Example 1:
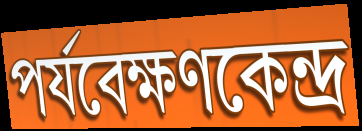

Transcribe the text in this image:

পর্যবেক্ষণকেন্দ্র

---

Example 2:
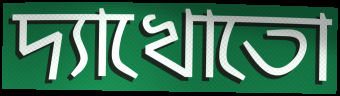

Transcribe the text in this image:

দ্যাখোতো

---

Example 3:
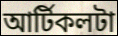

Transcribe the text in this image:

আর্টিকলটা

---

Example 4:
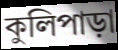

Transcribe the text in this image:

কুলিপাড়া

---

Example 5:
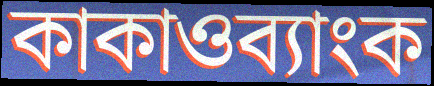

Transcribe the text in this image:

কাকাওব্যাংক